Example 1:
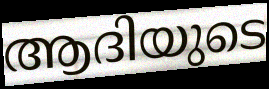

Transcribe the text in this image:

ആദിയുടെ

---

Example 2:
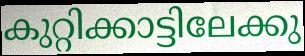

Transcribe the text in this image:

കുറ്റിക്കാട്ടിലേക്കു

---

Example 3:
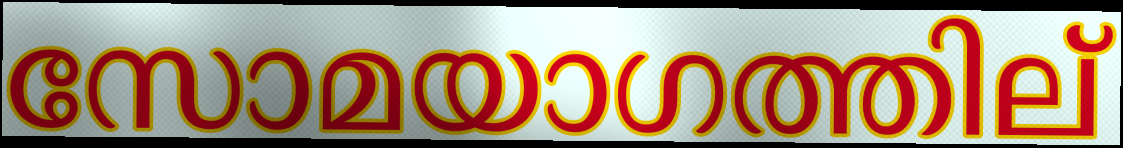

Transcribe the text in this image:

സോമയാഗത്തില്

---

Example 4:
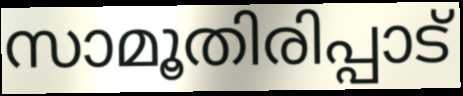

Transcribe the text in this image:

സാമൂതിരിപ്പാട്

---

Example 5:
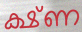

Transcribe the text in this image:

ക്ഷ്ണ